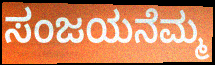
ಸಂಜಯನೆಮ್ಮ